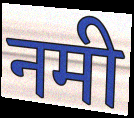
नमी